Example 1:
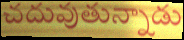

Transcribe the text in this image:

చదువుతున్నాడు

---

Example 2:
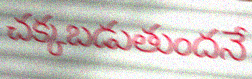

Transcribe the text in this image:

చక్కబడుతుందనే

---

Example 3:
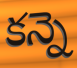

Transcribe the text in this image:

కన్నె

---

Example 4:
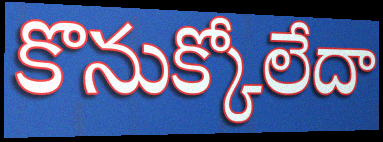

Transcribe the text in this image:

కొనుక్కోలేదా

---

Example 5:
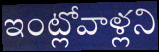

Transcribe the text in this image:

ఇంట్లోవాళ్లని